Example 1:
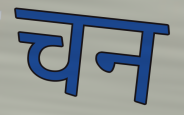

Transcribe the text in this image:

चन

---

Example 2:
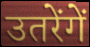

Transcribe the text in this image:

उतरेंगें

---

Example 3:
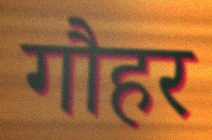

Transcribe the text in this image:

गौहर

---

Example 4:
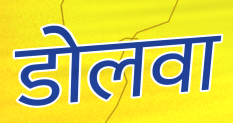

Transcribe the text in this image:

डोलवा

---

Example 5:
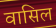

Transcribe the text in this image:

वासिल